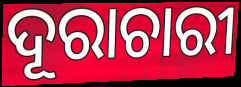
ଦୂରାଚାରୀ